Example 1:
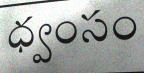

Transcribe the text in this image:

ధ్వంసం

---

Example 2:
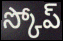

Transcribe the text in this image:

స్కోప్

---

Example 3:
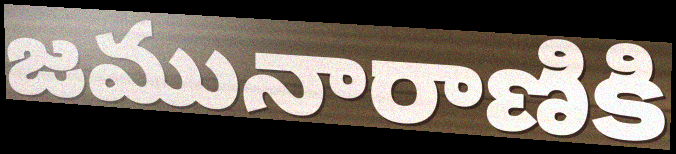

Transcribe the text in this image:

జమునారాణికి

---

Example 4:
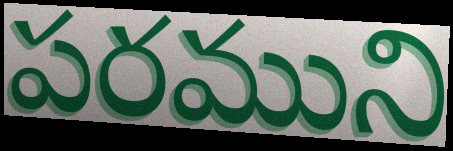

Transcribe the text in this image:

పరముని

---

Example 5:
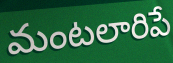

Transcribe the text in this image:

మంటలారిపే